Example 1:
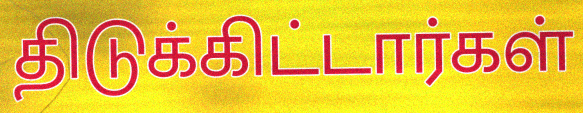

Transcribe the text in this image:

திடுக்கிட்டார்கள்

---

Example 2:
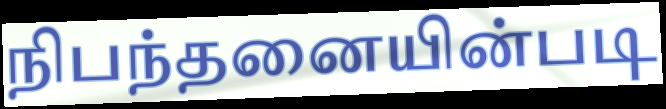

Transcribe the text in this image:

நிபந்தனையின்படி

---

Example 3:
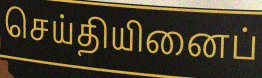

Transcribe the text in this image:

செய்தியினைப்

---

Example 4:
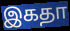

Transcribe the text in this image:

இகதா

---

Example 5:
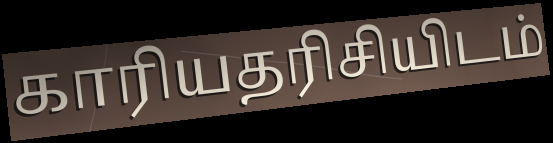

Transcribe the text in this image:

காரியதரிசியிடம்